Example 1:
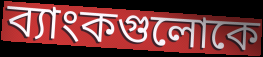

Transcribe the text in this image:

ব্যাংকগুলোকে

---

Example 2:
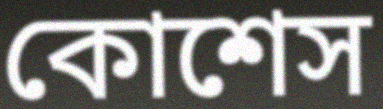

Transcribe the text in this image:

কোশেস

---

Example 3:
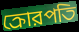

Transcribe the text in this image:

ক্রোরপতি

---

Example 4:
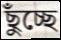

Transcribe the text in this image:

ছুঁচ্ছে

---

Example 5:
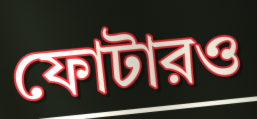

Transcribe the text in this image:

ফোটারও